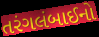
તરંગલંબાઈનો